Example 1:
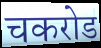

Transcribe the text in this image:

चकरोड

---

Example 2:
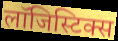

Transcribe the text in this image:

लॉजिस्टिक्स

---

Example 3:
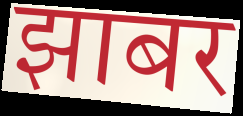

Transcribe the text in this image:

झाबर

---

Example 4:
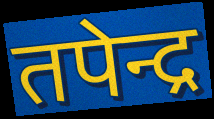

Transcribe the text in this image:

तपेन्द्र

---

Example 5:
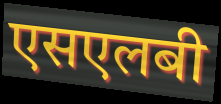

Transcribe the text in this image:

एसएलबी